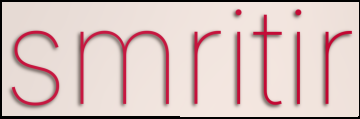
smritir